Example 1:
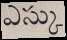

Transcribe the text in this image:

ఎస్కు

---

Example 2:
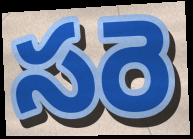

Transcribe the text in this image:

సరె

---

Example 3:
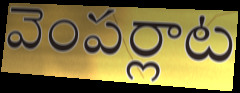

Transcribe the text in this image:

వెంపర్లాట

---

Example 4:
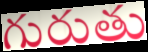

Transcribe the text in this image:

గురుతు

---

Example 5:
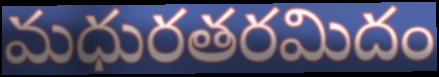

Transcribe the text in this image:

మధురతరమిదం